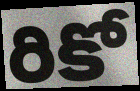
రికో